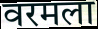
वरमला